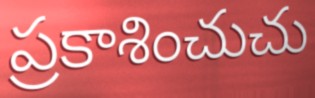
ప్రకాశించుచు